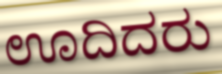
ಊದಿದರು